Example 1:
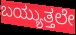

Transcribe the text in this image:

ಬಯ್ಯುತ್ತಲೇ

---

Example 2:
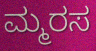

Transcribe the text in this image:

ಮ್ಮರಸ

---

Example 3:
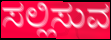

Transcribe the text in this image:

ಸಲ್ಲಿಸುವ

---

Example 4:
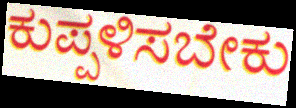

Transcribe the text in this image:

ಕುಪ್ಪಳಿಸಬೇಕು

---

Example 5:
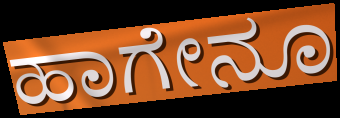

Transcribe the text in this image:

ಹಾಗೇನೂ